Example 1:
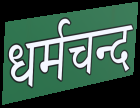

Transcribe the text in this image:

धर्मचन्द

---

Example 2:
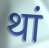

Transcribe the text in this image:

थां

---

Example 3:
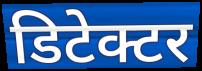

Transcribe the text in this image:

डिटेक्टर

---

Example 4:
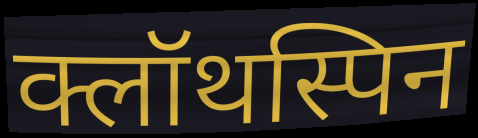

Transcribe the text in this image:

क्लॉथस्पिन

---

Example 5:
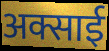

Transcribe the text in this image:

अक्साई